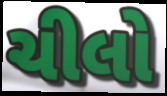
ચીલો